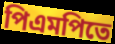
পিএমপিতে